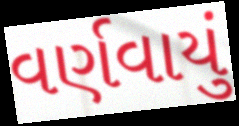
વર્ણવાયું